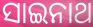
ସାଇନାଥ